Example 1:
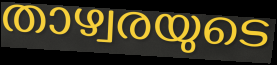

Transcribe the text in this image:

താഴ്വരയുടെ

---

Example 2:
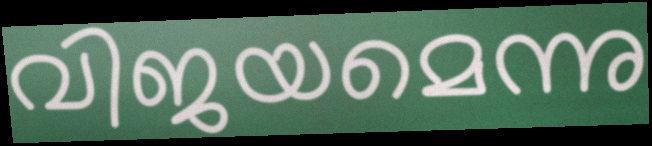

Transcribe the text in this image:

വിജയമെന്നു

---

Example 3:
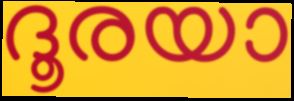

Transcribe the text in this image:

ദൂരയാ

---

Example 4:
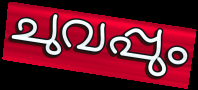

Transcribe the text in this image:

ചുവപ്പും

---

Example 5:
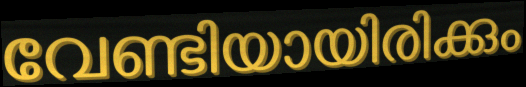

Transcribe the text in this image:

വേണ്ടിയായിരിക്കും